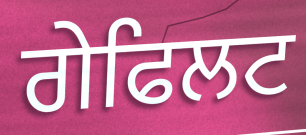
ਗੇਫਿਲਟ